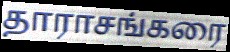
தாராசங்கரை